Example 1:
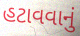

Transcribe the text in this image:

હટાવવાનું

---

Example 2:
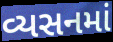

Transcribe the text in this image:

વ્યસનમાં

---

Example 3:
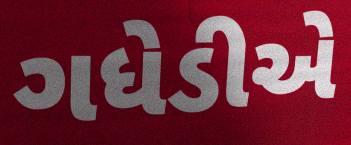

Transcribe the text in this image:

ગધેડીએ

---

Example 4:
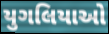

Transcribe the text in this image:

યુગલિયાઓ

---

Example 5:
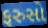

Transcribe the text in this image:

ફરુસો